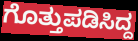
ಗೊತ್ತುಪಡಿಸಿದ್ದ